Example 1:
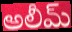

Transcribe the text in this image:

అలీమ్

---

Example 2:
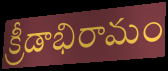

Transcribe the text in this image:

క్రీడాభిరామం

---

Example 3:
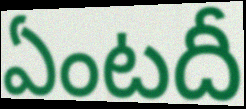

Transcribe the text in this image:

ఏంటదీ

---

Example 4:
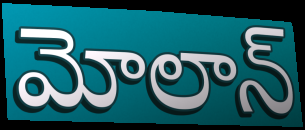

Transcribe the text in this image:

మోలాన్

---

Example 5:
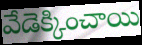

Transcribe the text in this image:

వేడెక్కించాయి